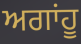
ਅਗਾਂਹੂ